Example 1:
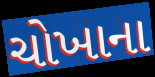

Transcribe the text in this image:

ચોખાના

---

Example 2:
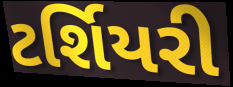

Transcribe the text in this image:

ટર્શિયરી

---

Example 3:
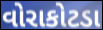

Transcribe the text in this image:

વોરાકોટડા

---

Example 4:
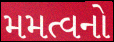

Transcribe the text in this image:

મમત્વનો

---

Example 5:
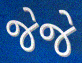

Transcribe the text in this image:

જેજે